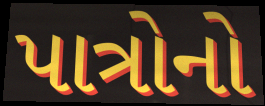
પાત્રોનો